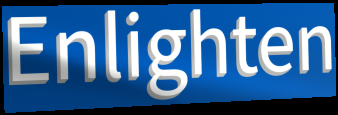
Enlighten